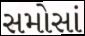
સમોસાં